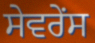
ਸੇਵਰੇਂਸ